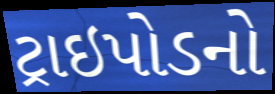
ટ્રાઇપોડનો